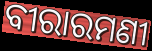
ବୀରାରମଣୀ